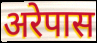
अरेपास